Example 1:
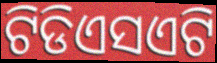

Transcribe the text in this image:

ଟିଡିଏସଏଟି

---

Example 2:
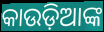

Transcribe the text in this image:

କାଉଡ଼ିଆଙ୍କ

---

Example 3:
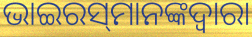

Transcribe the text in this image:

ଭାଇରସ୍‌ମାନଙ୍କଦ୍ୱାରା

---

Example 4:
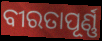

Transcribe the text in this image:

ବୀରତାପୂର୍ଣ୍ଣ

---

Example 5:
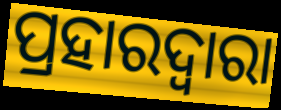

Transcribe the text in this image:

ପ୍ରହାରଦ୍ଵାରା